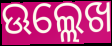
ଊଲ୍ଲେଖ